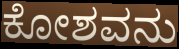
ಕೋಶವನು